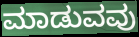
ಮಾಡುವವು